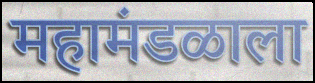
महामंडळाला